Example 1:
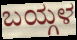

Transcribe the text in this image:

ಬಯ್ಗಳ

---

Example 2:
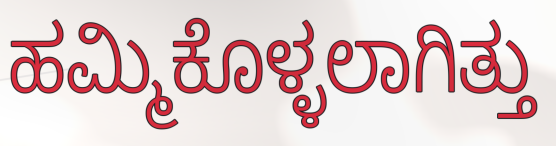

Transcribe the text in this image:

ಹಮ್ಮಿಕೊಳ್ಳಲಾಗಿತ್ತು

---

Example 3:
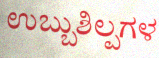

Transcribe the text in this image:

ಉಬ್ಬುಶಿಲ್ಪಗಳ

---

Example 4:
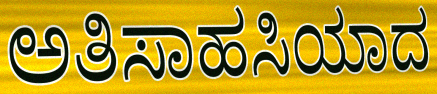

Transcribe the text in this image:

ಅತಿಸಾಹಸಿಯಾದ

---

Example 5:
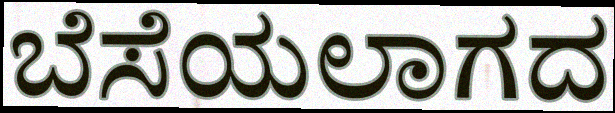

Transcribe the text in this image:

ಬೆಸೆಯಲಾಗದ